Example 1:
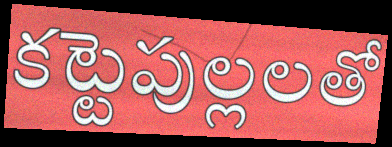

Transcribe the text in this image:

కట్టెపుల్లలతో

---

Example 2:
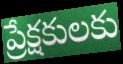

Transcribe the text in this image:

ప్రేక్షకులకు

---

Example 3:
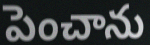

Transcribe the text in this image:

పెంచాను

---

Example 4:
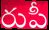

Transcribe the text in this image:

రుపీ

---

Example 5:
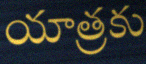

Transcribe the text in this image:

యాత్రకు